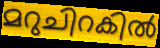
മറുചിറകിൽ